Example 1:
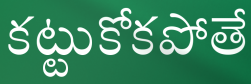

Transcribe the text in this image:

కట్టుకోకపోతే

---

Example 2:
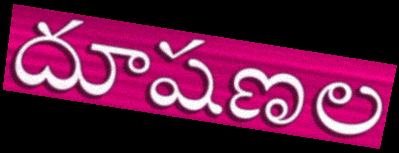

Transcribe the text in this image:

దూషణల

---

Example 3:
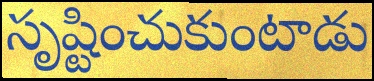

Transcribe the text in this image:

సృష్టించుకుంటాడు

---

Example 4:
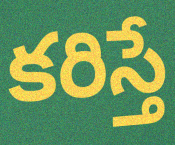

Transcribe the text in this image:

కరిస్తే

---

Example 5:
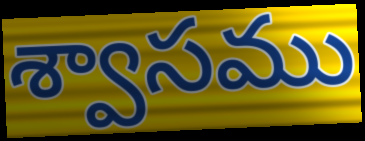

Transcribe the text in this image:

శ్వాసము